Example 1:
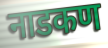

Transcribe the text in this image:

नाडकण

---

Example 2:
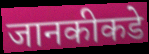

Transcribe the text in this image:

जानकीकडे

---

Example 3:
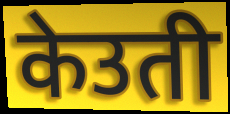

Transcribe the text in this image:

केउती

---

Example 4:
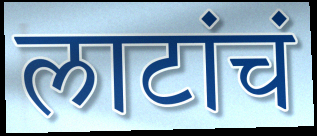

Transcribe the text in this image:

लाटांचं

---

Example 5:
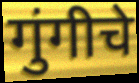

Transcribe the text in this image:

गुंगीचे